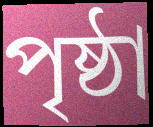
পৃষ্ঠা